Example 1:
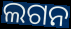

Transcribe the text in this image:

ଲଗନ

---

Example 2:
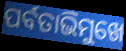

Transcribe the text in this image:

ପର୍ବତାଭିମୁଖେ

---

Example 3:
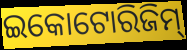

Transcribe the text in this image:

ଇକୋଟୋରିଜିମ୍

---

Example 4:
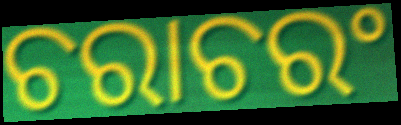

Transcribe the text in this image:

ଚରାଚରଂ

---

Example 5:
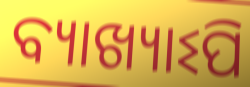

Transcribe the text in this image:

ବ୍ୟାଖ୍ୟାଽପି